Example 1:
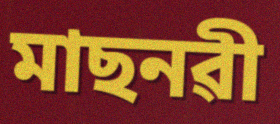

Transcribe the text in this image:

মাছনৱী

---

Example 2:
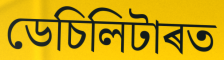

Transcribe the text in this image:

ডেচিলিটাৰত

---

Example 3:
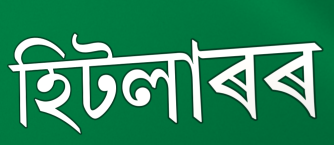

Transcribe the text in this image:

হিটলাৰৰ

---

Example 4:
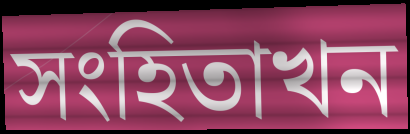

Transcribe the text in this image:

সংহিতাখন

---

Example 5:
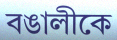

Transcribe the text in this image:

বঙালীকে